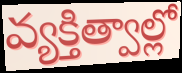
వ్యక్తిత్వాల్లో